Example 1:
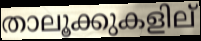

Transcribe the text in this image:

താലൂക്കുകളില്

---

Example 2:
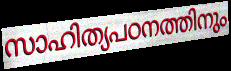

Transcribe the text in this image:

സാഹിത്യപഠനത്തിനും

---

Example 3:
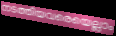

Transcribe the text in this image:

നടത്തിയവരെയെല്ലാം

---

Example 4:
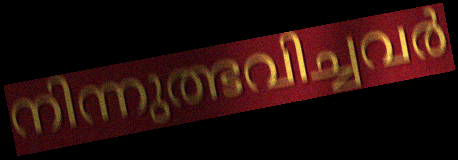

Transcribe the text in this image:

നിന്നുത്ഭവിച്ചവർ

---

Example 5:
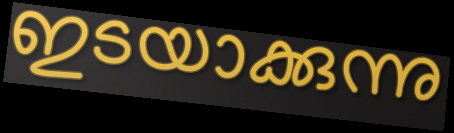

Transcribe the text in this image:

ഇടയാക്കുന്നു